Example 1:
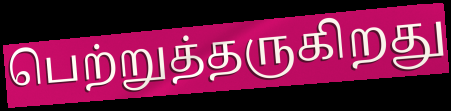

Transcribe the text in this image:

பெற்றுத்தருகிறது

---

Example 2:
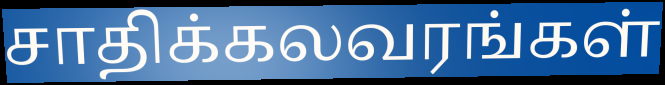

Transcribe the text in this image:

சாதிக்கலவரங்கள்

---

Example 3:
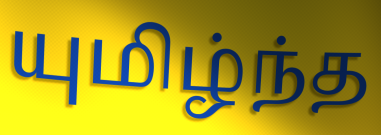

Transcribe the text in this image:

யுமிழ்ந்த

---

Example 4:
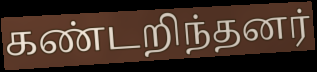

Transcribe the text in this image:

கண்டறிந்தனர்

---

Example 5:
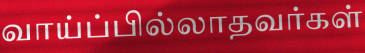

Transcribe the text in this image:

வாய்ப்பில்லாதவர்கள்